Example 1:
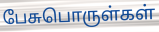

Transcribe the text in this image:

பேசுபொருள்கள்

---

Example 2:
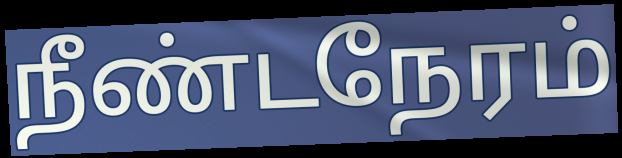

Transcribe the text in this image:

நீண்டநேரம்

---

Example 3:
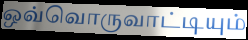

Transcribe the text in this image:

ஒவ்வொருவாட்டியும்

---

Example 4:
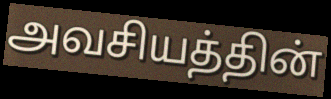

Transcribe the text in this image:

அவசியத்தின்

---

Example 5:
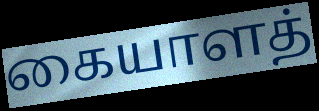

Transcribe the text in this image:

கையாளத்